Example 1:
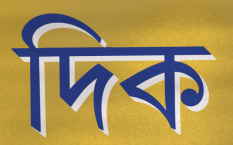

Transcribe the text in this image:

দিক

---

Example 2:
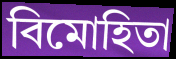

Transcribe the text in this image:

বিমোহিতা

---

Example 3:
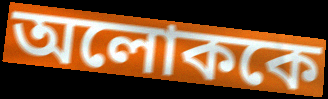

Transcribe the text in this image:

অলোককে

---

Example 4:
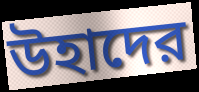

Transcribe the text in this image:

উহাদের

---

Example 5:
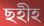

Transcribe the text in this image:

ছহীহ